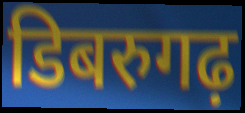
डिबरुगढ़